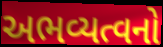
અભવ્યત્વનો